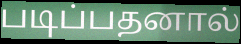
படிப்பதனால்